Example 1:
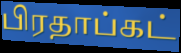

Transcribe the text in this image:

பிரதாப்கட்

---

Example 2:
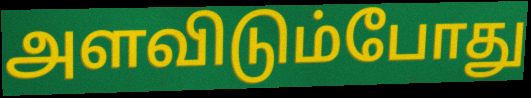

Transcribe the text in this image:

அளவிடும்போது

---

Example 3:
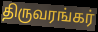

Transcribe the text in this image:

திருவரங்கர்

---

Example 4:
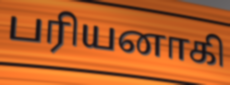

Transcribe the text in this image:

பரியனாகி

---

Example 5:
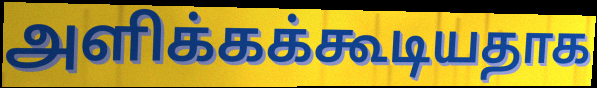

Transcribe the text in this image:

அளிக்கக்கூடியதாக